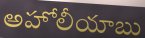
అహోలీయాబు